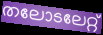
തലോടലേറ്റ്